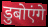
डुबोएंगे